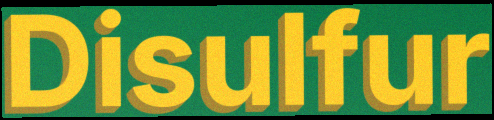
Disulfur